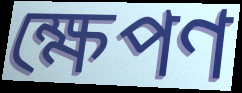
ক্ষেপণ